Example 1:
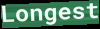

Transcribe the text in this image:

Longest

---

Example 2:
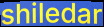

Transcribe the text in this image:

shiledar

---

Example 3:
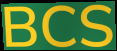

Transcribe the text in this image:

BCS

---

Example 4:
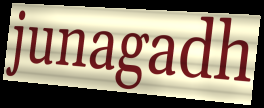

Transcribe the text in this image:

junagadh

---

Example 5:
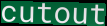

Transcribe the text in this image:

cutout